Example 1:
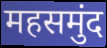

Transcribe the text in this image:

महसमुंद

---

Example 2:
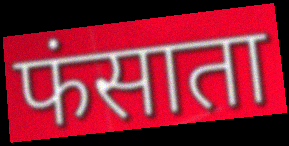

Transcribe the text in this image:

फंसाता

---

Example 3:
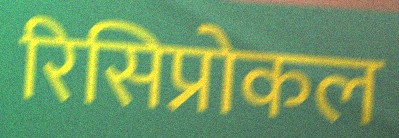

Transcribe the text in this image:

रिसिप्रोकल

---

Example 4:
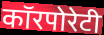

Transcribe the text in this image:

कॉरपोरेटी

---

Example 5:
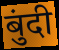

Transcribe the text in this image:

बुंदी